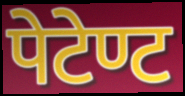
पेटेण्ट